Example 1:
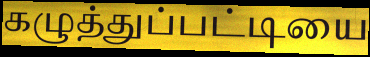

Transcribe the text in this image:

கழுத்துப்பட்டியை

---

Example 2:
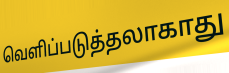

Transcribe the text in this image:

வெளிப்படுத்தலாகாது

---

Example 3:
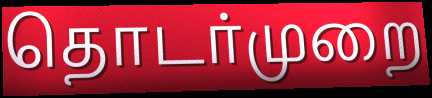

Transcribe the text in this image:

தொடர்முறை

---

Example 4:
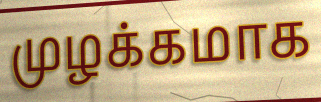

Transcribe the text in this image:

முழக்கமாக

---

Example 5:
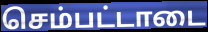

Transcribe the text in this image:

செம்பட்டாடை